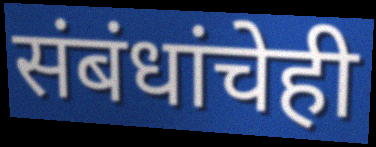
संबंधांचेही